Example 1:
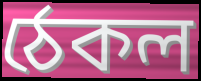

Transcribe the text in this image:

ঠেকল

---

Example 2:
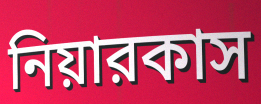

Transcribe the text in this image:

নিয়ারকাস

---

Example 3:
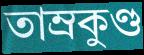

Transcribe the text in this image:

তাম্রকুণ্ড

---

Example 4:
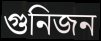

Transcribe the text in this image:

গুনিজন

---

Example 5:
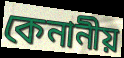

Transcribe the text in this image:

কেনানীয়